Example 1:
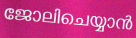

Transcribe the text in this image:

ജോലിചെയ്യാൻ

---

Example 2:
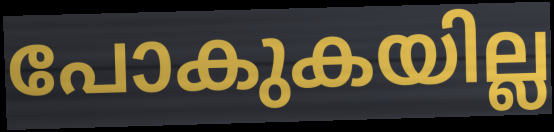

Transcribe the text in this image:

പോകുകയില്ല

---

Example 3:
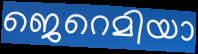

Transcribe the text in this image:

ജെറെമിയാ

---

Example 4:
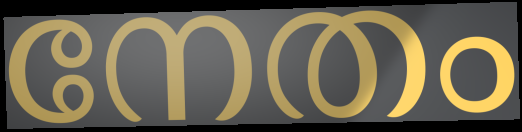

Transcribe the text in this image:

നേതം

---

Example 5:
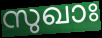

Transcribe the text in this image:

സുഖാഃ